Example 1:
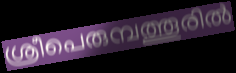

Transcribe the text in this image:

ശ്രീപെരുമ്പത്തൂരിൽ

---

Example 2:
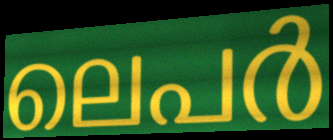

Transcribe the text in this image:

ലെപർ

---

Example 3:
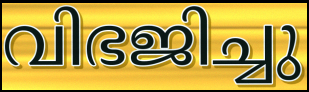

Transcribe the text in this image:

വിഭജിച്ചു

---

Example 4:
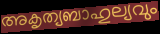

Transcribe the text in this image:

അകൃത്യബാഹുല്യവും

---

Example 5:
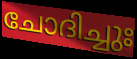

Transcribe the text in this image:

ചോദിച്ചുഃ